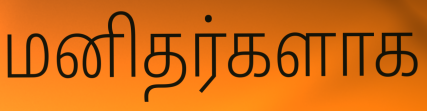
மனிதர்களாக